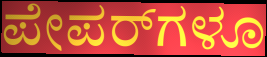
ಪೇಪರ್‌ಗಳೂ